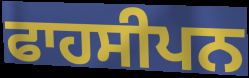
ਫਾਹਸੀਪਨ